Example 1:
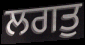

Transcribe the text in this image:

ਲਗਤੁ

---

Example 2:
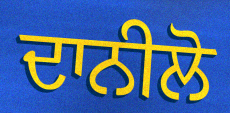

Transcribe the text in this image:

ਦਾਨੀਲੋ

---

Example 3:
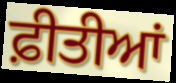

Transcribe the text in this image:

ਫ਼ੀਤੀਆਂ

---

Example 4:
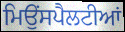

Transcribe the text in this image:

ਮਿਉਂਸਪੈਲਟੀਆਂ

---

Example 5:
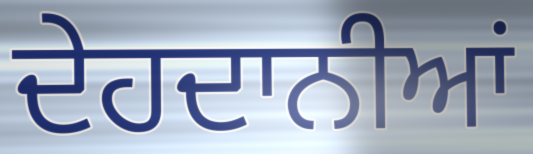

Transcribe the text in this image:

ਦੇਹਦਾਨੀਆਂ